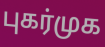
புகர்முக